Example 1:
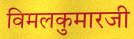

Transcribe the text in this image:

विमलकुमारजी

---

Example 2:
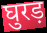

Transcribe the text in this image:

घुरड़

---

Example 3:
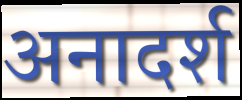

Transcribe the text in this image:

अनादर्श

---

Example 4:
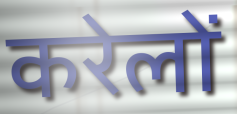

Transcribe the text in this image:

करेलों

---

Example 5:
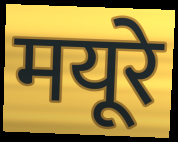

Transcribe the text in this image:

मयूरे